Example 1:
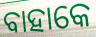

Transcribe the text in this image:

ବାହାକେ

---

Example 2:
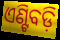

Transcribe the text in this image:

ଏଣ୍ଟିବଡ଼ି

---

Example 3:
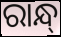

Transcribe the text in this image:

ରାନ୍ଧ୍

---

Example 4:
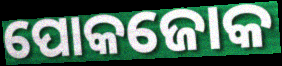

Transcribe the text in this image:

ପୋକଜୋକ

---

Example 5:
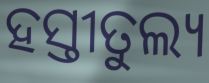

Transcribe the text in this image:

ହସ୍ତୀତୁଲ୍ୟ